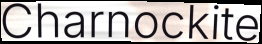
Charnockite